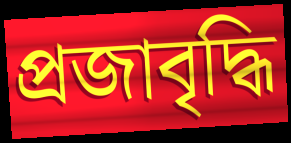
প্রজাবৃদ্ধি